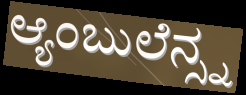
ಆ್ಯಂಬುಲೆನ್ಸ್ನ